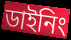
ডাইনিং